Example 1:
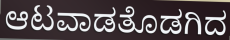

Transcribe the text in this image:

ಆಟವಾಡತೊಡಗಿದ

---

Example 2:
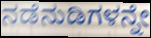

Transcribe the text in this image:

ನಡೆನುಡಿಗಳನ್ನೇ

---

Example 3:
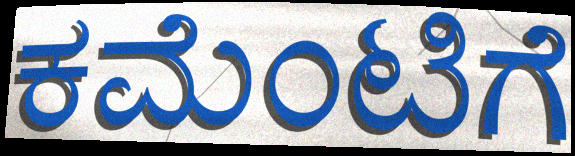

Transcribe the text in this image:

ಕಮೆಂಟಿಗೆ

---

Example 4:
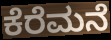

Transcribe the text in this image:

ಕೆರೆಮನೆ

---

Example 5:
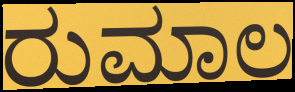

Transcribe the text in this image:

ರುಮಾಲ